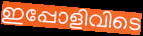
ഇപ്പോളിവിടെ